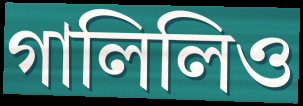
গালিলিও